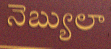
నెబ్యులా